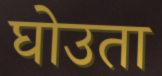
घोउता